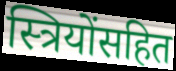
स्त्रियोंसहित